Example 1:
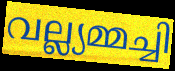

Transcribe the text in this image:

വല്ല്യമ്മച്ചി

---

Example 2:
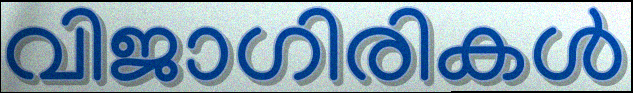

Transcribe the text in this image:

വിജാഗിരികൾ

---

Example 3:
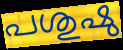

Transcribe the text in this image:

പശുഷു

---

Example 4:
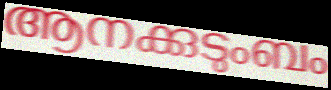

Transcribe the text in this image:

ആനക്കുടുംബം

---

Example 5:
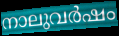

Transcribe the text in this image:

നാലുവർഷം